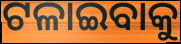
ଟଳାଇବାକୁ